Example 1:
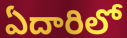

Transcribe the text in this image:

ఏదారిలో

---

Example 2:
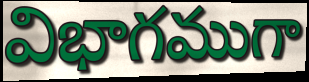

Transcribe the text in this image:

విభాగముగా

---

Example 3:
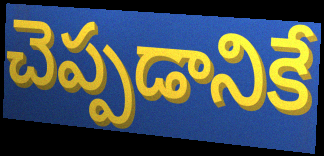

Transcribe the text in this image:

చెప్పడానికే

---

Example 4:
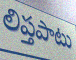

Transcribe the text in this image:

లిప్తపాటు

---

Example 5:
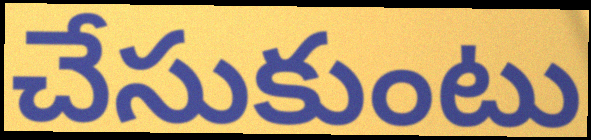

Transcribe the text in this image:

చేసుకుంటు